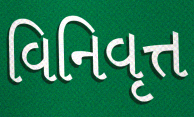
વિનિવૃત્ત